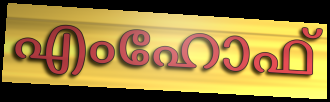
എംഹോഫ്